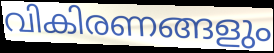
വികിരണങ്ങളും